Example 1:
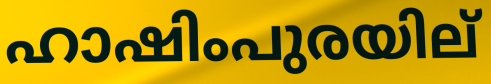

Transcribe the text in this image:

ഹാഷിംപുരയില്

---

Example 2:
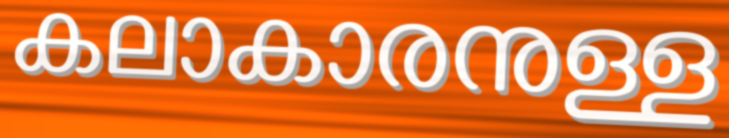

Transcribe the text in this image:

കലാകാരനുള്ള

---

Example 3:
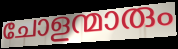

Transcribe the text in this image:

ചോളന്മാരും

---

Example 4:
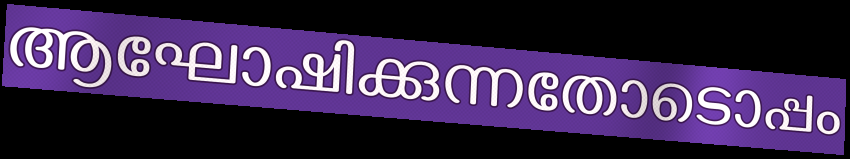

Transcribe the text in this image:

ആഘോഷിക്കുന്നതോടൊപ്പം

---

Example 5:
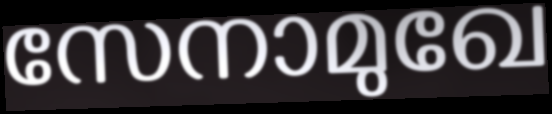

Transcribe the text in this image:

സേനാമുഖേ